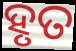
ହୃତ